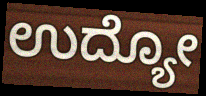
ಉದ್ಯೋ